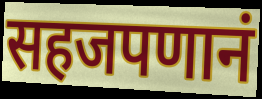
सहजपणानं